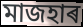
মাজহাৰ